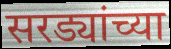
सरड्यांच्या